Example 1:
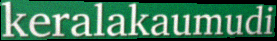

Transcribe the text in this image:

keralakaumudi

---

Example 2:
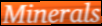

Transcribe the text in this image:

Minerals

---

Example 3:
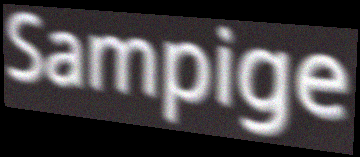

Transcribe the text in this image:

Sampige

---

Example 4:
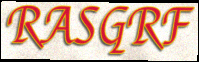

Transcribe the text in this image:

RASGRF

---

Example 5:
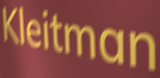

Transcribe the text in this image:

Kleitman